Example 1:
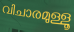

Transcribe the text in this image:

വിചാരമുള്ളൂ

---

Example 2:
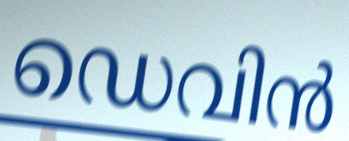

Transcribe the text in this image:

ഡെവിൻ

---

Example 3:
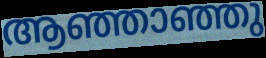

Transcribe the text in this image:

ആഞ്ഞാഞ്ഞു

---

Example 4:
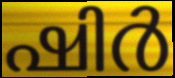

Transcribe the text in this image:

ഷിർ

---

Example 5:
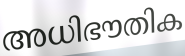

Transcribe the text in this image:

അധിഭൗതിക